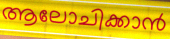
ആലോചിക്കാൻ